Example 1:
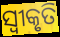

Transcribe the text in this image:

ସ୍ବୀକୃତି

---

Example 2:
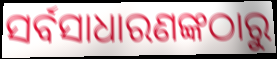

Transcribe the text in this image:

ସର୍ବସାଧାରଣଙ୍କଠାରୁ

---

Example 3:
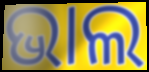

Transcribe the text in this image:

ଭାଲ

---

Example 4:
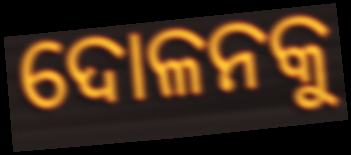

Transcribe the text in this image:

ଦୋଳନକୁ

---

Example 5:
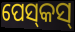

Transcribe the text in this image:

ପେସ୍‌କସ୍